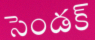
సెండక్